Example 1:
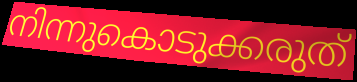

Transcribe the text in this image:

നിന്നുകൊടുക്കരുത്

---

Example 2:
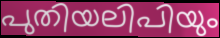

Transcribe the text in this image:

പുതിയലിപിയും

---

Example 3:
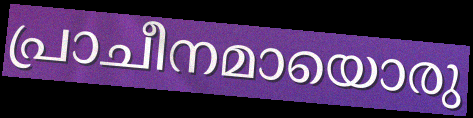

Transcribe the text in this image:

പ്രാചീനമായൊരു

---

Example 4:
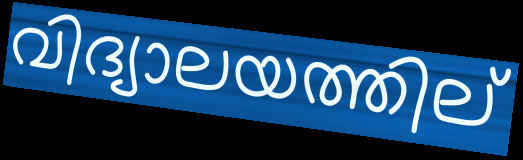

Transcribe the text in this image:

വിദ്യാലയത്തില്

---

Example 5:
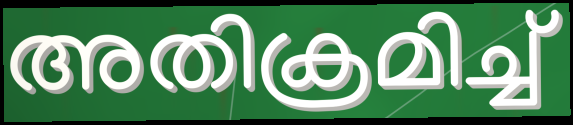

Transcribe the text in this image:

അതിക്രമിച്ച്